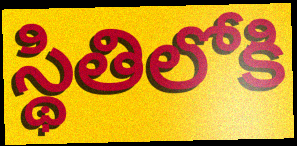
స్థితిలోకి